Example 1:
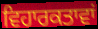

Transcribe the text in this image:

ਵਿਹਾਰਕਤਾਵਾਂ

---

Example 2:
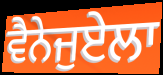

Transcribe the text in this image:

ਵੈਨੇਜੁਏਲਾ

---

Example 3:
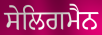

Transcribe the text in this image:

ਸੇਲਿਗਮੈਨ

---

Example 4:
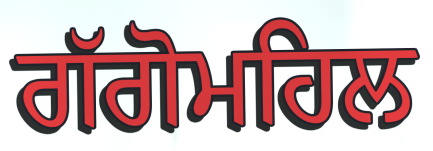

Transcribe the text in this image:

ਗੱਗੋਮਹਿਲ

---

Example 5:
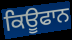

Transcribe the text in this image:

ਕਿਊਫਾਨ